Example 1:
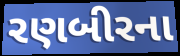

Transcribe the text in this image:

રણબીરના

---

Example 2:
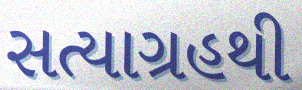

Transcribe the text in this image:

સત્યાગ્રહથી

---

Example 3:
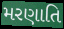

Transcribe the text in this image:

મરણાતિ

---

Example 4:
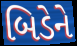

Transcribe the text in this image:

બિડેને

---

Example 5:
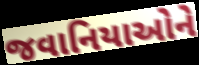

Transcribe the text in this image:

જવાનિયાઓને